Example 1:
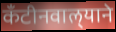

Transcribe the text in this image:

कँटीनवाल्याने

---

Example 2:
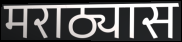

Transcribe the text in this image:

मराठ्यास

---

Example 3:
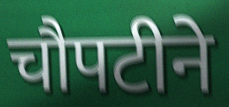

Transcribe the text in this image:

चौपटीने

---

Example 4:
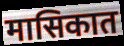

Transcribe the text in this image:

मासिकात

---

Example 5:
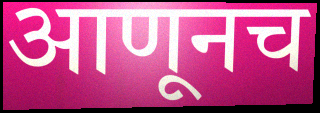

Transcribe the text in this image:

आणूनच